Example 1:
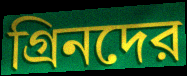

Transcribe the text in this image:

গ্রিনদের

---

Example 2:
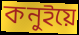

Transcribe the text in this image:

কনুইয়ে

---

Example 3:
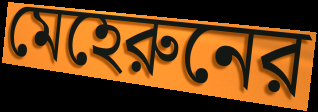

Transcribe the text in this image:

মেহেরুনের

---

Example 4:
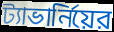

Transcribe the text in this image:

ট্যাভার্নিয়ের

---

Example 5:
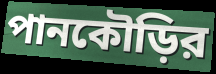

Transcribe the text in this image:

পানকৌড়ির